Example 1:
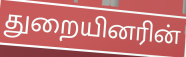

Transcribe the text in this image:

துறையினரின்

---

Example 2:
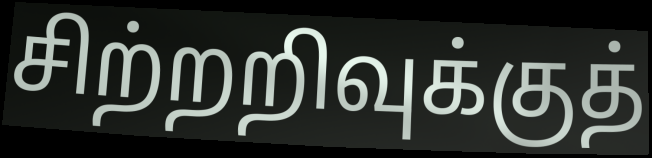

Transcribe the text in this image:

சிற்றறிவுக்குத்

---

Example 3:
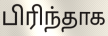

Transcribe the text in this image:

பிரிந்தாக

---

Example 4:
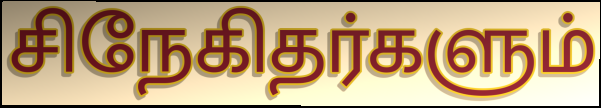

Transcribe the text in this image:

சிநேகிதர்களும்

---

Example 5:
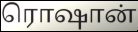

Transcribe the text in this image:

ரொஷான்